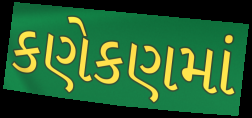
કણેકણમાં